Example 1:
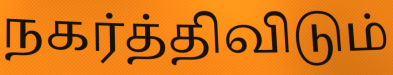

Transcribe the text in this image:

நகர்த்திவிடும்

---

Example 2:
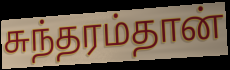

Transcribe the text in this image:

சுந்தரம்தான்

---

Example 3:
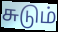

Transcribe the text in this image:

சுடும்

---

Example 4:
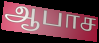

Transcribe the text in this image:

ஆபாச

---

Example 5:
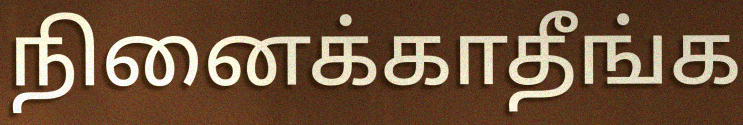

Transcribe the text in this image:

நினைக்காதீங்க